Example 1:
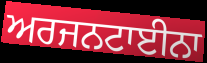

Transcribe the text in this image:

ਅਰਜਨਟਾਈਨਾ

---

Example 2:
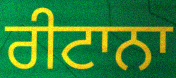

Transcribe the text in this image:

ਰੀਟਾਨਾ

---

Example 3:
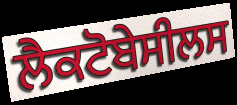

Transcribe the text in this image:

ਲੈਕਟੋਬੇਸੀਲਸ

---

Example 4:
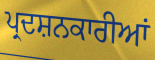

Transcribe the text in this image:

ਪ੍ਰਦਸ਼ਨਕਾਰੀਆਂ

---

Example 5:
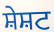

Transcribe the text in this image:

ਸ਼ੇਸ਼ਟ